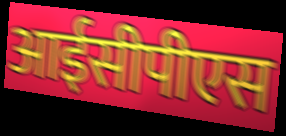
आईसीपीएस